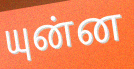
யுன்ன